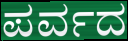
ಪರ್ವದ